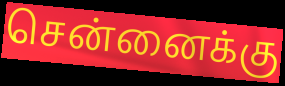
சென்னைக்கு